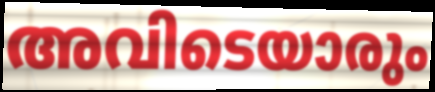
അവിടെയാരും